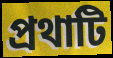
প্রথাটি